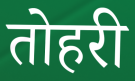
तोहरी